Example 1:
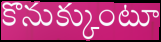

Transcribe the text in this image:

కొనుక్కుంటూ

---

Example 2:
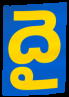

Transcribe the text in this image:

దై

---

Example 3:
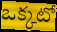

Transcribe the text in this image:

ఒక్కటో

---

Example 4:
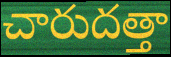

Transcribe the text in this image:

చారుదత్తా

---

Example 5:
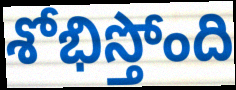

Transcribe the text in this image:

శోభిస్తోంది